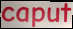
caput